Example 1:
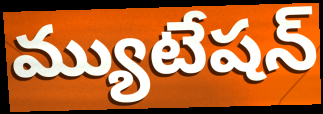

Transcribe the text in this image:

మ్యుటేషన్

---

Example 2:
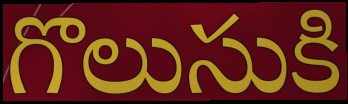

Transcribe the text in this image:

గొలుసుకి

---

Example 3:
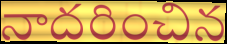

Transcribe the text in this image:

నాదరించిన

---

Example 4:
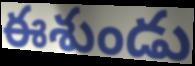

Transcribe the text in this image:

ఈశుండు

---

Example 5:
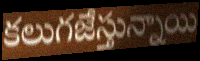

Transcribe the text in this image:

కలుగజేస్తున్నాయి